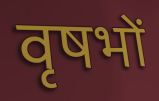
वृषभों